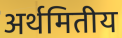
अर्थमितीय